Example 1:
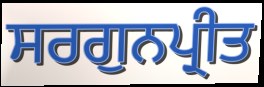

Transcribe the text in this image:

ਸਰਗੁਨਪ੍ਰੀਤ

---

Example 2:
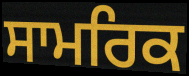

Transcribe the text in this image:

ਸਾਮਰਿਕ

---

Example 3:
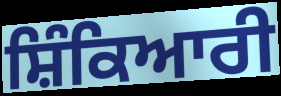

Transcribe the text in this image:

ਸ਼ਿੰਕਿਆਰੀ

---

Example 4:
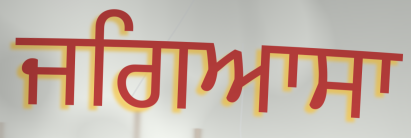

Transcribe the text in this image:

ਜਗਿਆਸਾ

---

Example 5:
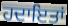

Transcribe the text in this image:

ਹਦਾਇਤਾਂ